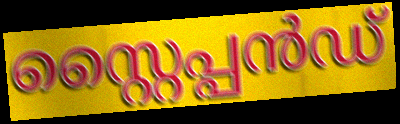
സ്റ്റൈപ്പൻഡ്